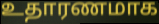
உதாரணமாக